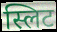
स्लिट